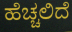
ಹೆಚ್ಚಲಿದೆ